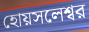
হোয়সলেশ্বর